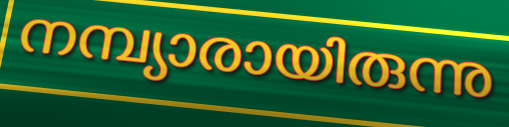
നമ്പ്യാരായിരുന്നു